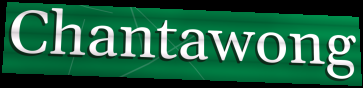
Chantawong